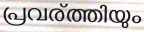
പ്രവര്ത്തിയും